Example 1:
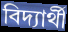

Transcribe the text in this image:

বিদ্যার্থী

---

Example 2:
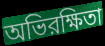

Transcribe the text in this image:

অভিরক্ষিতা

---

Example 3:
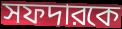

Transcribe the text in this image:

সফদারকে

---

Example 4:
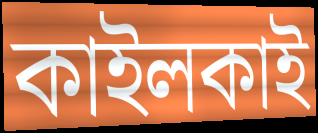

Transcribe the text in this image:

কাইলকাই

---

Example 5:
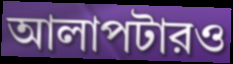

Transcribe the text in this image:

আলাপটারও